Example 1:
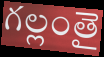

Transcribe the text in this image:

గల్లంతై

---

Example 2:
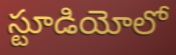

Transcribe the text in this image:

స్టూడియోలో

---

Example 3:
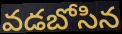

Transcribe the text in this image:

వడబోసిన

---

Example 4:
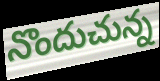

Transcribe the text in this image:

నొందుచున్న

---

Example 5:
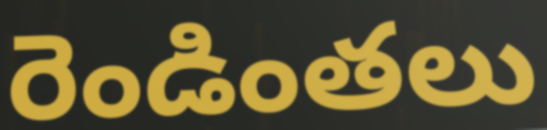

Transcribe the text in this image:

రెండింతలు